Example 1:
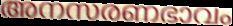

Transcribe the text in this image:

അനസരണഭാവം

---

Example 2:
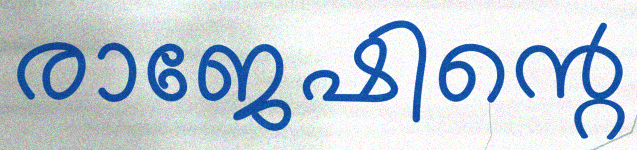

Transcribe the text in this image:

രാജേഷിന്റെ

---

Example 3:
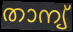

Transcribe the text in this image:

താന്യ്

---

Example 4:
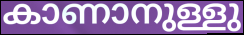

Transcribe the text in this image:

കാണാനുള്ളു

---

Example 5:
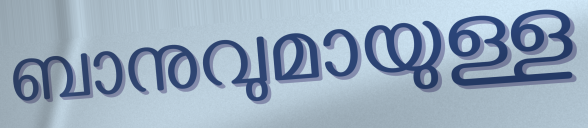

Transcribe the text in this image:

ബാനുവുമായുള്ള